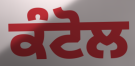
ਕੰਟੋਲ